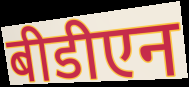
बीडीएन